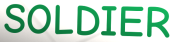
SOLDIER